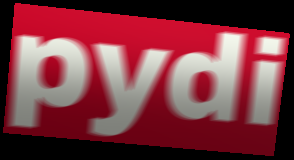
pydi